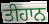
ਤੀਹਾਨ